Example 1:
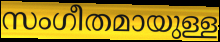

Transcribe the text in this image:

സംഗീതമായുള്ള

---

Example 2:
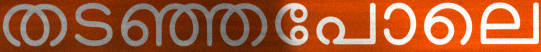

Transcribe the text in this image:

തടഞ്ഞപോലെ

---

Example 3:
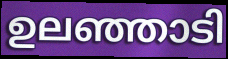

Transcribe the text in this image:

ഉലഞ്ഞാടി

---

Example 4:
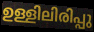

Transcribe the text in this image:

ഉള്ളിലിരിപ്പു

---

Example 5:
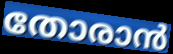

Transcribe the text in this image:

തോരാൻ